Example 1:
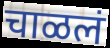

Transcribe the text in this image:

चाळलं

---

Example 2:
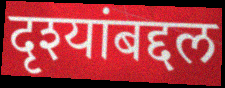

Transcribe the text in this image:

दृश्यांबद्दल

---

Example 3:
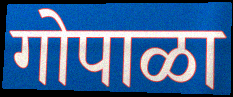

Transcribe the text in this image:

गोपाळा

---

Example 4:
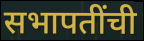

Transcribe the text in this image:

सभापतींची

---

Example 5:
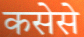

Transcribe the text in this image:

कसेसे